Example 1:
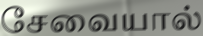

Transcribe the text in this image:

சேவையால்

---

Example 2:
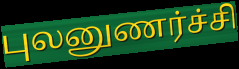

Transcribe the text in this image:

புலனுணர்ச்சி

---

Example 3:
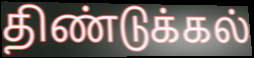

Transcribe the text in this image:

திண்டுக்கல்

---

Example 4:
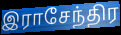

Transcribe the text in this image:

இராசேந்திர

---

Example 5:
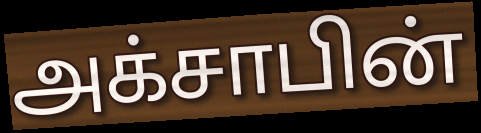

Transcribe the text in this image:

அக்சாபின்